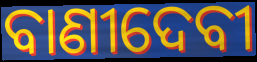
ବାଣୀଦେବୀ